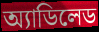
অ্যাডিলেড